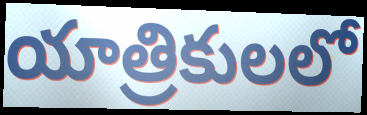
యాత్రికులలో